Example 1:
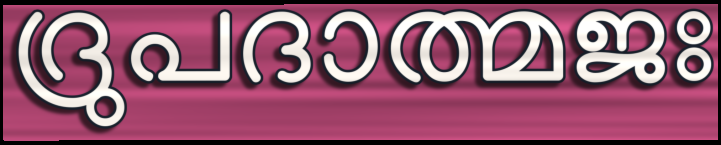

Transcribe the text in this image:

ദ്രുപദാത്മജഃ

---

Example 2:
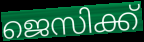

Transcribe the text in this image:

ജെസിക്ക്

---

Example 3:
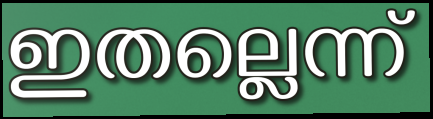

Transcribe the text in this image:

ഇതല്ലെന്ന്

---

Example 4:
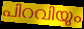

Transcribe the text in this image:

പിറവിയും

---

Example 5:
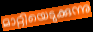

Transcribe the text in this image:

മാറ്റിയെടുക്കുന്നു